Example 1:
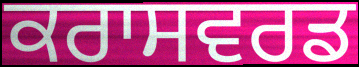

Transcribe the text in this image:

ਕਰਾਸਵਰਡ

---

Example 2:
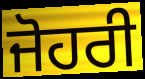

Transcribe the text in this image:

ਜੋਹਰੀ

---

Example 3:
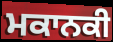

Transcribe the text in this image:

ਮਕਾਨਕੀ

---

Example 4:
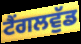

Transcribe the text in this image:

ਟੈਂਗਲਵੁੱਡ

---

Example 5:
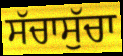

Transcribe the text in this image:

ਸੱਚਾਸੁੱਚਾ